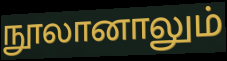
நூலானாலும்